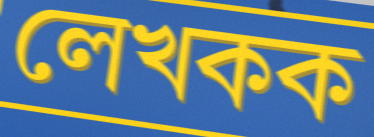
লেখকক